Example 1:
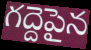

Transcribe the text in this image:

గద్దెపైన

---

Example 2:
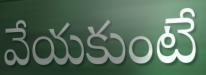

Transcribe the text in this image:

వేయకుంటే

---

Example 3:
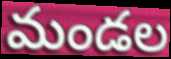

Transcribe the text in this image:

మండల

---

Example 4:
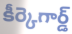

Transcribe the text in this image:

కీర్కెగార్డ్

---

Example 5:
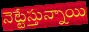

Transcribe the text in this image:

నెట్టేస్తున్నాయి